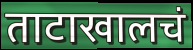
ताटाखालचं